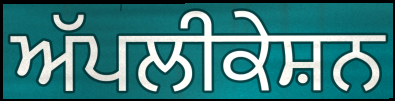
ਅੱਪਲੀਕੇਸ਼ਨ